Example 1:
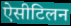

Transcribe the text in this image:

ऐसीटिलन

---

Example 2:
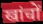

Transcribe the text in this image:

खांचों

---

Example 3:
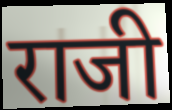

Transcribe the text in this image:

राजी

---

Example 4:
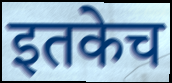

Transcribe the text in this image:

इतकेच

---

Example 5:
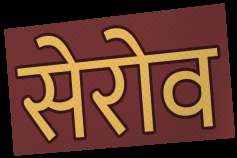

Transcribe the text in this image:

सेरोव